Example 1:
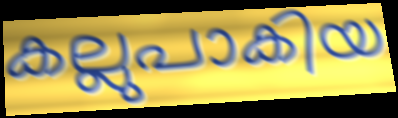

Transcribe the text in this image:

കല്ലുപാകിയ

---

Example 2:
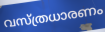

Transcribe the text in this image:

വസ്ത്രധാരണം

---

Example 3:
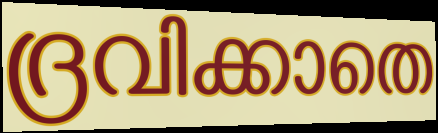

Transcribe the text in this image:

ദ്രവിക്കാതെ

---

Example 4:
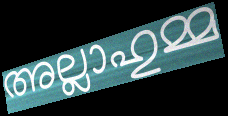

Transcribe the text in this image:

അല്ലാഹുമ്മ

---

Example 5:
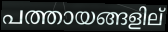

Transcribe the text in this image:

പത്തായങ്ങളില്